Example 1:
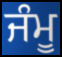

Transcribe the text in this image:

ਜੰਮੂ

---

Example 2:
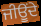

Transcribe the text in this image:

ਜੀਊਂਦੇ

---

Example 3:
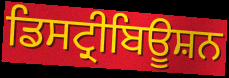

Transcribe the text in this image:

ਡਿਸਟ੍ਰੀਬਿਊਸ਼ਨ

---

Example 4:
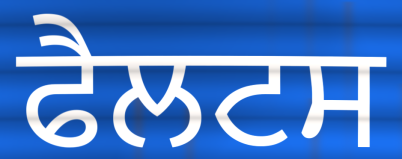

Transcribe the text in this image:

ਫੈਲਟਸ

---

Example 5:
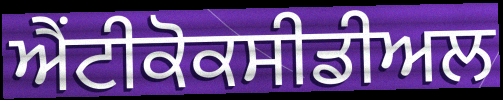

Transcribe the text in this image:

ਐਂਟੀਕੋਕਸੀਡੀਅਲ